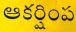
ఆకర్షింప